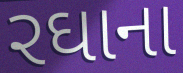
રઘાના